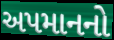
અપમાનનો